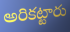
అరికట్టారు